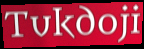
Tukdoji